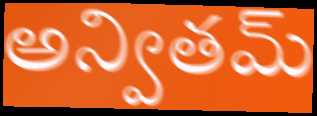
అన్వితమ్